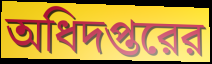
অধিদপ্তরের